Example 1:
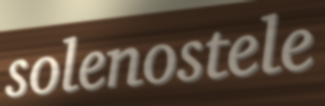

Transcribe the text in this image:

solenostele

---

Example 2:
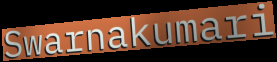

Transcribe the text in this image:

Swarnakumari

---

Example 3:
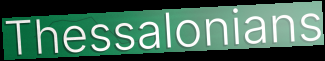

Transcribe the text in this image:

Thessalonians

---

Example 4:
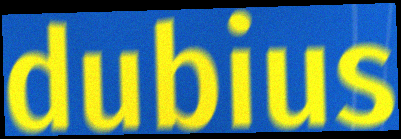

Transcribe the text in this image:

dubius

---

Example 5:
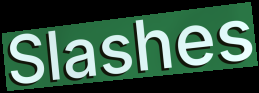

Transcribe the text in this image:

Slashes